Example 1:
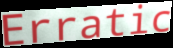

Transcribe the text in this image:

Erratic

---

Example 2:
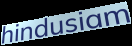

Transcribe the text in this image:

hindusiam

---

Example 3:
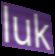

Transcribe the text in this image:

luk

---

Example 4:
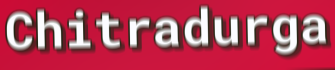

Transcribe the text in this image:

Chitradurga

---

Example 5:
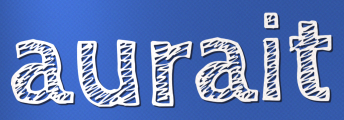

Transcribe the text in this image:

aurait